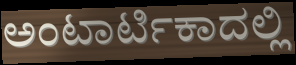
ಅಂಟಾರ್ಟಿಕಾದಲ್ಲಿ